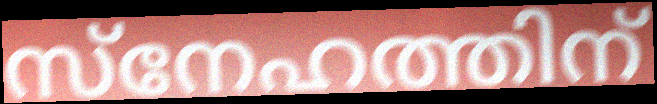
സ്നേഹത്തിന്